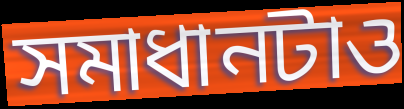
সমাধানটাও